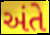
અંતે